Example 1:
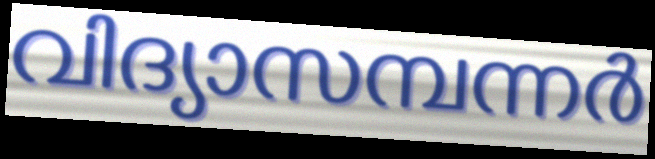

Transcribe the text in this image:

വിദ്യാസമ്പന്നർ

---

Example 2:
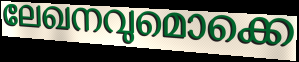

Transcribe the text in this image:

ലേഖനവുമൊക്കെ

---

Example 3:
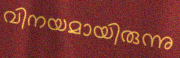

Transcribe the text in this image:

വിനയമായിരുന്നു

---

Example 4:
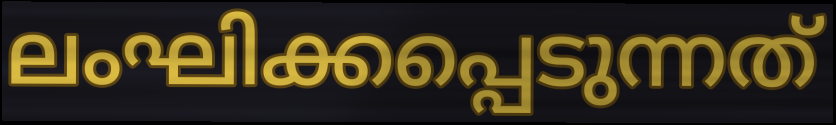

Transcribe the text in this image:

ലംഘിക്കപ്പെടുന്നത്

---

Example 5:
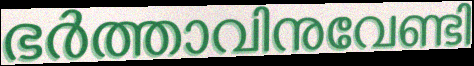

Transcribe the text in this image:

ഭർത്താവിനുവേണ്ടി